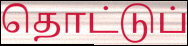
தொட்டுப்